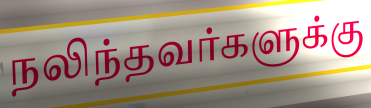
நலிந்தவர்களுக்கு